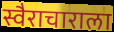
स्वैराचाराला